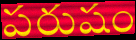
పరుషం